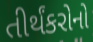
તીર્થંકરોનો